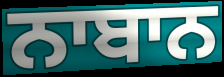
ਨਾਬਾਨ